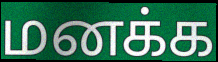
மனக்க